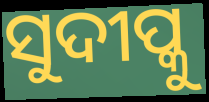
ସୁଦୀପ୍କୁ